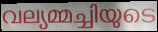
വല്യമ്മച്ചിയുടെ